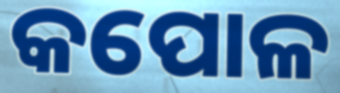
କପୋଳ